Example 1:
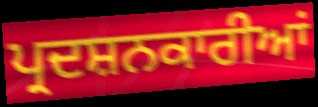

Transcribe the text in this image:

ਪ੍ਰਦਸ਼ਨਕਾਰੀਆਂ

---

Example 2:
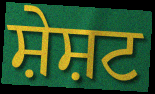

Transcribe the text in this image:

ਸ਼ੇਸ਼ਟ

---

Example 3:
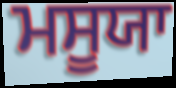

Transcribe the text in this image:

ਮਸੂਯਾ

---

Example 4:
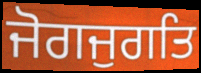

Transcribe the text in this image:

ਜੋਗਜੁਗਤਿ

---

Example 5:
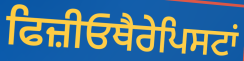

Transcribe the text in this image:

ਫਿਜ਼ੀਓਥੈਰੇਪਿਸਟਾਂ